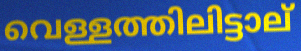
വെള്ളത്തിലിട്ടാല്